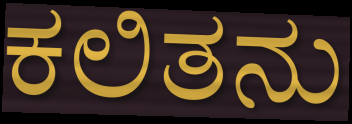
ಕಲಿತನು